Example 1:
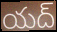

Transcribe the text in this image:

యద్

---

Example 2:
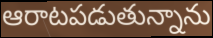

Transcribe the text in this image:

ఆరాటపడుతున్నాను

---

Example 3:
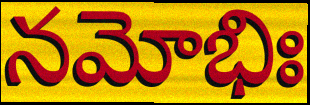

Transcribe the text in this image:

నమోభిః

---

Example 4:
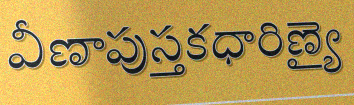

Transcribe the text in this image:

వీణాపుస్తకధారిణ్యై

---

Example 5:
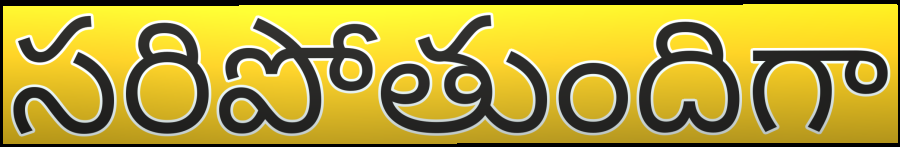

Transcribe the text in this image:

సరిపోతుందిగా